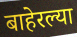
बाहेरल्या